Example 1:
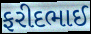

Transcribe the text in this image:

ફરીદભાઈ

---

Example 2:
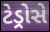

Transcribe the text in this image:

ટેડ્રોસે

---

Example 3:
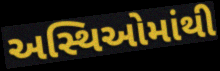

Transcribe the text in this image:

અસ્થિઓમાંથી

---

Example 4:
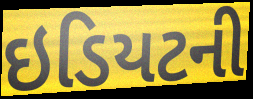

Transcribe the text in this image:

ઇડિયટની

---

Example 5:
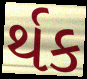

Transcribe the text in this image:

ર્થક